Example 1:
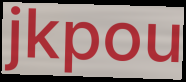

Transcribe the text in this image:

jkpou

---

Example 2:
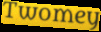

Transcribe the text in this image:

Twomey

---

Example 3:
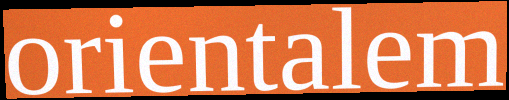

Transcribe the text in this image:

orientalem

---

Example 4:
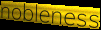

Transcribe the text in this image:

nobleness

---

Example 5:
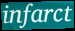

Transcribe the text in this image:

infarct